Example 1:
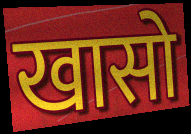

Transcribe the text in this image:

खासो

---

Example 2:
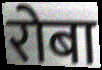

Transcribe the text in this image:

रोबा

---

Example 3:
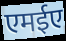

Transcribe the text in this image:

एमईए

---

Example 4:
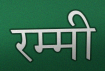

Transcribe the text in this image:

रम्मी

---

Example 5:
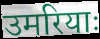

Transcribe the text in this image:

उमरियाः